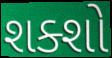
શક્શો